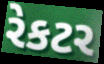
રેકટર